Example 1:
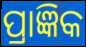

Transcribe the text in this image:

ପ୍ରାଜ୍ଞିକ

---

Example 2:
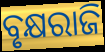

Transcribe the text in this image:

ବୃକ୍ଷରାଜି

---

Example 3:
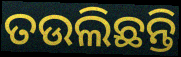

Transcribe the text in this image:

ତଉଲିଛନ୍ତି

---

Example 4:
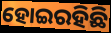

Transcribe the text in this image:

ହୋଇରହିଛି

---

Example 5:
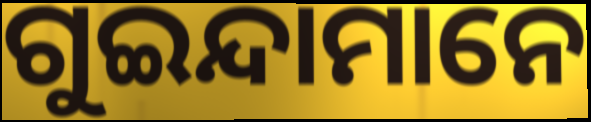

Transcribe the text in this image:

ଗୁଇନ୍ଦାମାନେ